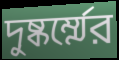
দুষ্কর্ম্মের